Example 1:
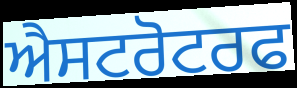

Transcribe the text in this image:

ਐਸਟਰੋਟਰਫ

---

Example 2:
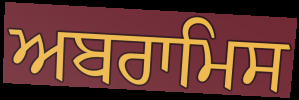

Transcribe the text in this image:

ਅਬਰਾਮਿਸ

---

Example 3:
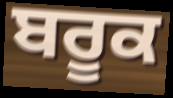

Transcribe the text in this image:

ਬਰੂਕ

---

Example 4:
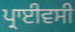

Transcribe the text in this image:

ਪ੍ਰਾਈਵਸੀ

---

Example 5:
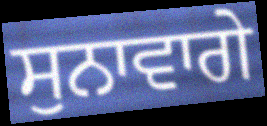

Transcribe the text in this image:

ਸੁਨਾਵਾਗੇ